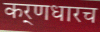
कर्णधारच